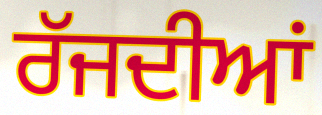
ਰੱਜਦੀਆਂ